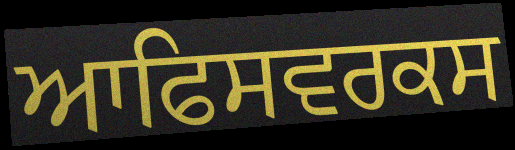
ਆਫਿਸਵਰਕਸ